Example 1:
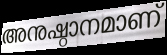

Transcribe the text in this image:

അനുഷ്ഠാനമാണ്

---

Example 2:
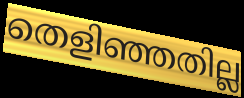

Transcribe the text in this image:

തെളിഞ്ഞതില്ല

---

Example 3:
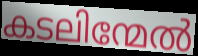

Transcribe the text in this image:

കടലിന്മേൽ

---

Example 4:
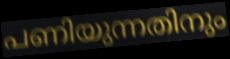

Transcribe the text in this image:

പണിയുന്നതിനും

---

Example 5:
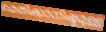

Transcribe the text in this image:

മെതിക്കാനിഷ്ടമുള്ള